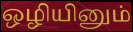
ஒழியினும்